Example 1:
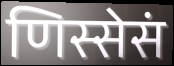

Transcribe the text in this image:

णिस्सेसं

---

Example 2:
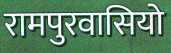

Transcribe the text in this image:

रामपुरवासियो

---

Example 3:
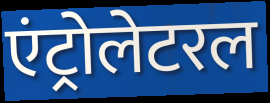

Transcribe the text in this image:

एंट्रोलेटरल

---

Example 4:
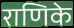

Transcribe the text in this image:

राणिके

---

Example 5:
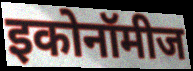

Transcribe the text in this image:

इकोनॉमीज